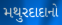
મથુરદાદાનો